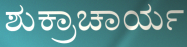
ಶುಕ್ರಾಚಾರ್ಯ